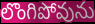
లొంగిపోవును